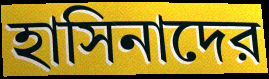
হাসিনাদের